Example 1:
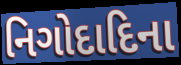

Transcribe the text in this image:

નિગોદાદિના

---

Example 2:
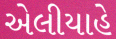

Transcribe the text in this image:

એલીયાહે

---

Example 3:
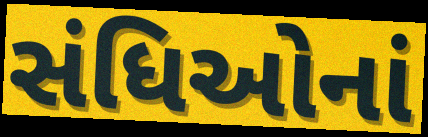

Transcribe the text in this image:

સંધિઓનાં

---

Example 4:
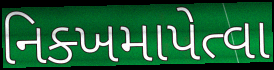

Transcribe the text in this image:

નિક્ખમાપેત્વા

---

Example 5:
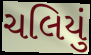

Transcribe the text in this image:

ચલિયું